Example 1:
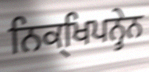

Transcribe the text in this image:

ਨਿਕ੍ਖਿਪਨ੍ਤੇਨ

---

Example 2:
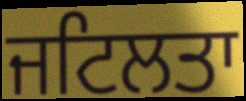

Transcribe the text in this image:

ਜਟਿਲਤਾ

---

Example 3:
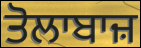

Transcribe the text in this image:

ਤੋਲਾਬਾਜ਼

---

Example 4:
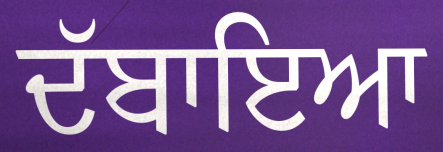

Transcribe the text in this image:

ਦੱਬਾਇਆ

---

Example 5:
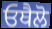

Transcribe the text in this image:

ਓਥੈਲੋ